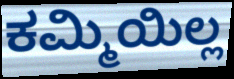
ಕಮ್ಮಿಯಿಲ್ಲ